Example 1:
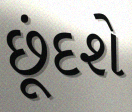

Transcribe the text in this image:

છૂંદશે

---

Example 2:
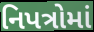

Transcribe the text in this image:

નિપત્રોમાં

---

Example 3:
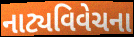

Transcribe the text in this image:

નાટ્યવિવેચના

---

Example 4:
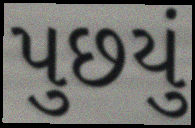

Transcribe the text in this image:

પુછયું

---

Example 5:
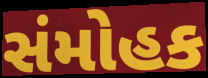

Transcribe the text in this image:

સંમોહક